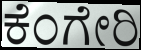
ಕೆಂಗೇರಿ